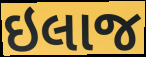
ઇલાજ